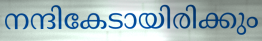
നന്ദികേടായിരിക്കും